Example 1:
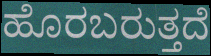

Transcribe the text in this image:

ಹೊರಬರುತ್ತದೆ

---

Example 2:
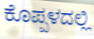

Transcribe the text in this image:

ಕೊಪ್ಪಳದಲ್ಲಿ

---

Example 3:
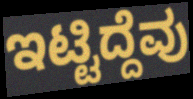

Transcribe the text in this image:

ಇಟ್ಟಿದ್ದೆವು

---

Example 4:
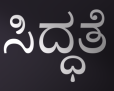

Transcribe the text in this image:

ಸಿದ್ಧತೆ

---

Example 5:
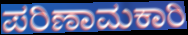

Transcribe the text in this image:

ಪರಿಣಾಮಕಾರಿ